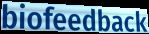
biofeedback